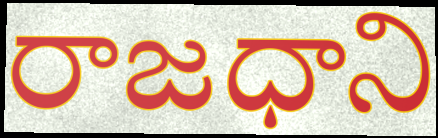
రాజధాని